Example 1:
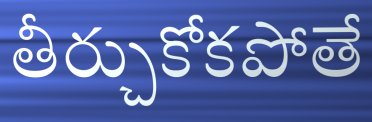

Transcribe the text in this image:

తీర్చుకోకపోతే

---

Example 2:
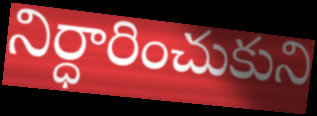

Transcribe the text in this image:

నిర్ధారించుకుని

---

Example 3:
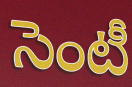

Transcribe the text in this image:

సెంటీ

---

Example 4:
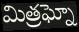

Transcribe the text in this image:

మిత్రఘ్నో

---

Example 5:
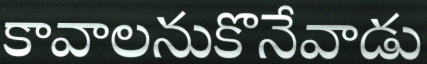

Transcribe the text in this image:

కావాలనుకొనేవాడు